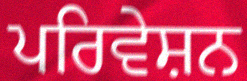
ਪਰਿਵੇਸ਼ਨ